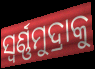
ସ୍ଵର୍ଣ୍ଣମୁଦ୍ରାକୁ